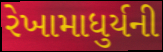
રેખામાધુર્યની